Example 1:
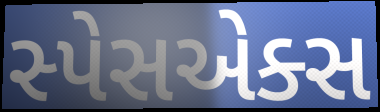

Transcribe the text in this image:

સ્પેસએક્સ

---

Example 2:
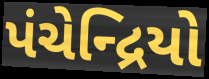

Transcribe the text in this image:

પંચેન્દ્રિયો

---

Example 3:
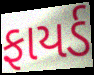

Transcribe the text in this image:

ફાયર્ડ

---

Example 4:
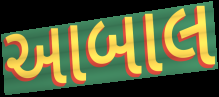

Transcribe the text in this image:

આબાલ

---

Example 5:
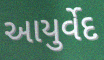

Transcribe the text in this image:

આયુર્વેદ